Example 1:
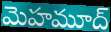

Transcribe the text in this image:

మెహమూద్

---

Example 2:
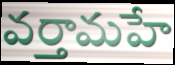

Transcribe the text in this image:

వర్తామహే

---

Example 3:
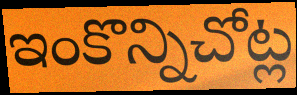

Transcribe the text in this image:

ఇంకొన్నిచోట్ల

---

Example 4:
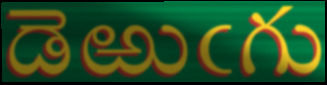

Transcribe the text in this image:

డెఱుఁగు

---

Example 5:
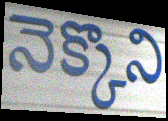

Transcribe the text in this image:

నెక్కొని